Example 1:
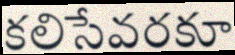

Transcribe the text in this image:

కలిసేవరకూ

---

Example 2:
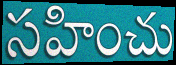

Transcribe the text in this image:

సహించు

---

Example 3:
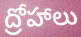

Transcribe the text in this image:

ద్రోహాలు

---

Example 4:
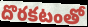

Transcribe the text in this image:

దొరకటంతో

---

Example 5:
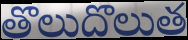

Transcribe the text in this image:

తొలుదొలుత